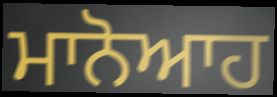
ਮਾਨੋਆਹ